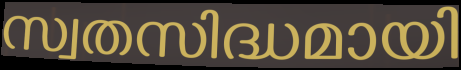
സ്വതസിദ്ധമായി